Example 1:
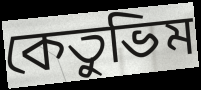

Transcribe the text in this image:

কেতুভিম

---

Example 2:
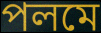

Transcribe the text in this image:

পলমে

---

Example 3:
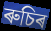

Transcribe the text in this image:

ৰুচিৰ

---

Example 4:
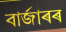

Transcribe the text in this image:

বাৰ্জাৰৰ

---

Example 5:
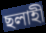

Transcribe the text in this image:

ছলাহী